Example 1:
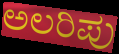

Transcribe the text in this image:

ಅಲರಿಪು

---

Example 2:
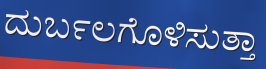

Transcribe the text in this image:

ದುರ್ಬಲಗೊಳಿಸುತ್ತಾ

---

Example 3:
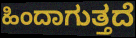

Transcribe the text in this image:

ಹಿಂದಾಗುತ್ತದೆ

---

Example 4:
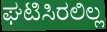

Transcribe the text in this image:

ಘಟಿಸಿರಲಿಲ್ಲ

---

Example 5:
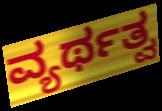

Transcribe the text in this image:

ವ್ಯರ್ಥತ್ವ